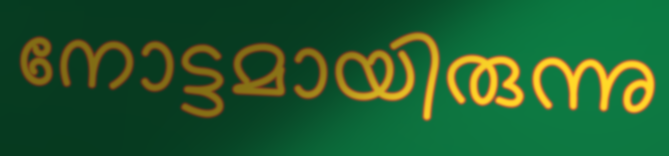
നോട്ടമായിരുന്നു